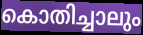
കൊതിച്ചാലും